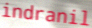
indranil